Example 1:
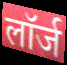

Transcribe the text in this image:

लॉर्ज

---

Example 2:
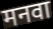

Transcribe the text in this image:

मनवा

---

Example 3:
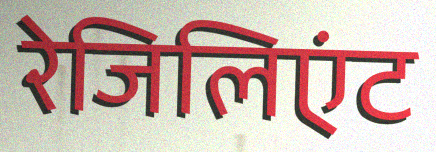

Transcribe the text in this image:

रेजिलिएंट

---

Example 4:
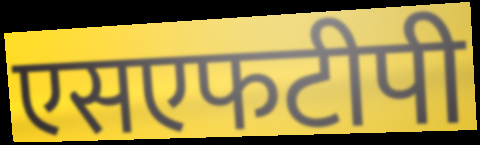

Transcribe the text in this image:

एसएफटीपी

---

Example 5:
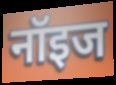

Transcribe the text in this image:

नॉइज